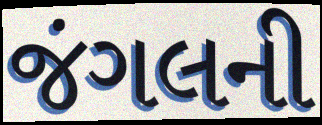
જંગલની